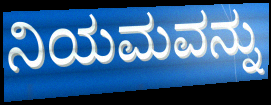
ನಿಯಮವನ್ನು